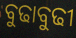
ବୁଢାବୁଢୀ